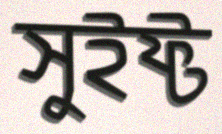
সুইফ্ট